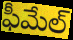
ఫీమేల్